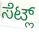
ಸೆಟ್ಲ್